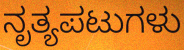
ನೃತ್ಯಪಟುಗಳು